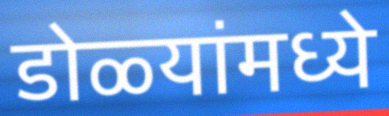
डोळ्यांमध्ये